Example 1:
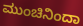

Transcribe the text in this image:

ಮುಂಚಿನಿಂದಾ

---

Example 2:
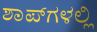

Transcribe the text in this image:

ಶಾಪ್‌ಗಳಲ್ಲಿ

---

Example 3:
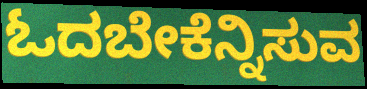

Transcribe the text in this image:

ಓದಬೇಕೆನ್ನಿಸುವ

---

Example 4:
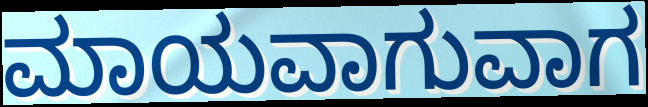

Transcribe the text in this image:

ಮಾಯವಾಗುವಾಗ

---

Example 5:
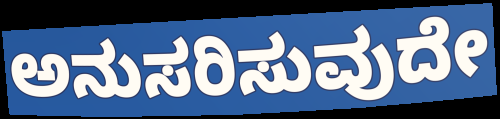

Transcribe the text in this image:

ಅನುಸರಿಸುವುದೇ